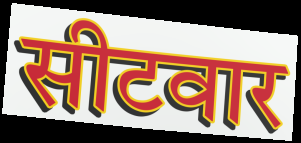
सीटवार